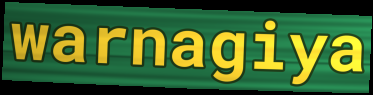
warnagiya